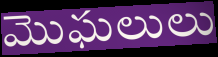
మొఘలులు